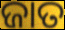
ଜାତ